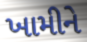
ખામીને